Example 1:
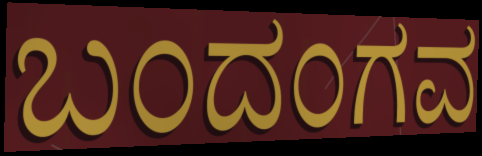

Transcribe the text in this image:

ಬಂದಂಗವ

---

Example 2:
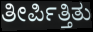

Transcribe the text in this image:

ತೀರ್ಪಿತ್ತಿತು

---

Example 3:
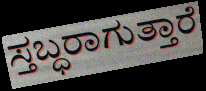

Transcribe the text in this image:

ಸ್ತಬ್ಧರಾಗುತ್ತಾರೆ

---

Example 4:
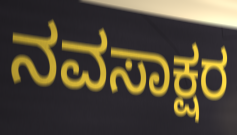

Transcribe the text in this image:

ನವಸಾಕ್ಷರ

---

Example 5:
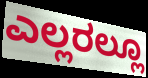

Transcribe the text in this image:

ಎಲ್ಲರಲ್ಲೂ